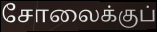
சோலைக்குப்